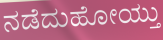
ನಡೆದುಹೋಯ್ತು